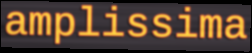
amplissima